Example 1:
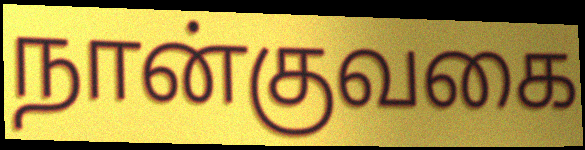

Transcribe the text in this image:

நான்குவகை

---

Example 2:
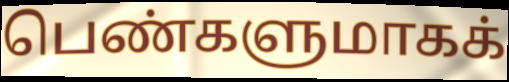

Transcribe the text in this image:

பெண்களுமாகக்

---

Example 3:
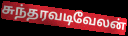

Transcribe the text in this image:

சுந்தரவடிவேலன்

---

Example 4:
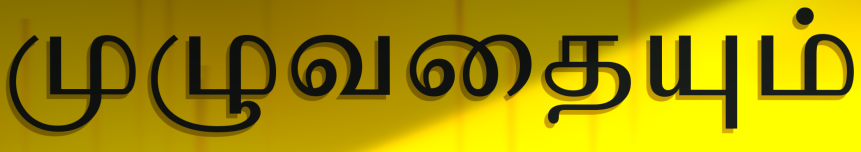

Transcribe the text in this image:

முழுவதையும்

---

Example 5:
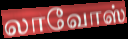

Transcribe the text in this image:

லாவோஸ்